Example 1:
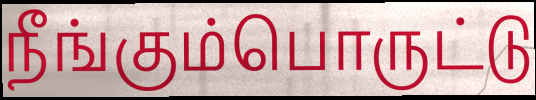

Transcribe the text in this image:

நீங்கும்பொருட்டு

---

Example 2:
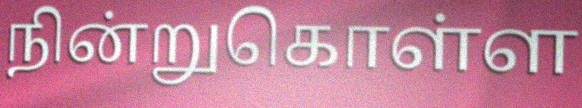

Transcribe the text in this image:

நின்றுகொள்ள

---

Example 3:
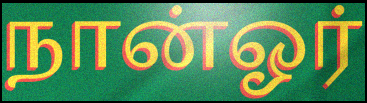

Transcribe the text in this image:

நான்ஓர்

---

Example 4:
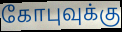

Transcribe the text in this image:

கோபுவுக்கு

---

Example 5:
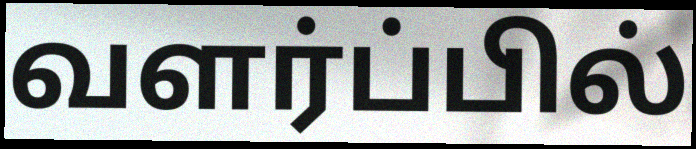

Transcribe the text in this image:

வளர்ப்பில்